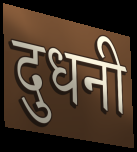
दुधनी